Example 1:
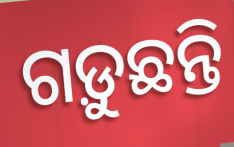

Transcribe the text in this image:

ଗଡ଼ୁଛନ୍ତି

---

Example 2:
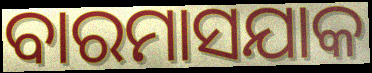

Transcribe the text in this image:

ବାରମାସଯାକ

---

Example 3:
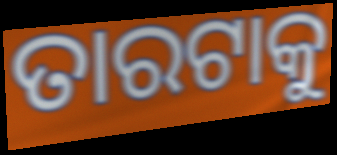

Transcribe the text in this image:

ତାରଟାକୁ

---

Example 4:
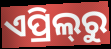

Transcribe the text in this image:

ଏପ୍ରିଲ୍‍ରୁ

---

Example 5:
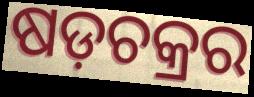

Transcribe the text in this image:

ଷଡ଼ଚକ୍ରର